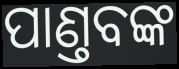
ପାଣ୍ତବଙ୍କ